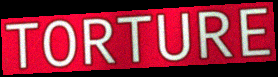
TORTURE